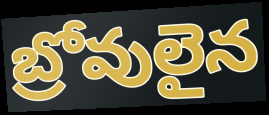
బ్రోవులైన